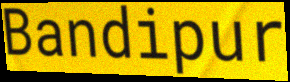
Bandipur